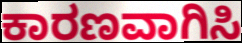
ಕಾರಣವಾಗಿಸಿ